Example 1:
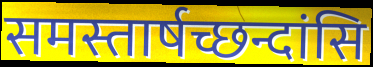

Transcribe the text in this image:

समस्तार्षच्छन्दांसि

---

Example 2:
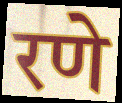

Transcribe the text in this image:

रणे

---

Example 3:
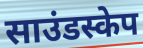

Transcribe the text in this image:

साउंडस्केप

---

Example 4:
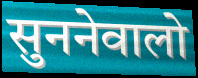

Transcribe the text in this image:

सुननेवालो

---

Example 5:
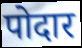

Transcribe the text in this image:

पोदार